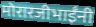
मोरारजीभाईंनी